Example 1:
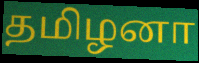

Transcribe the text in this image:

தமிழனா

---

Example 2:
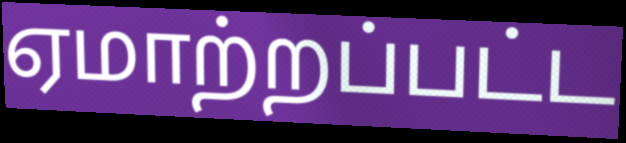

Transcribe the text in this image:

ஏமாற்றப்பட்ட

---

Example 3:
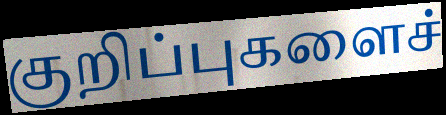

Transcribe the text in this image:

குறிப்புகளைச்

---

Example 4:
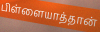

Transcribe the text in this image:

பிள்ளையாத்தான்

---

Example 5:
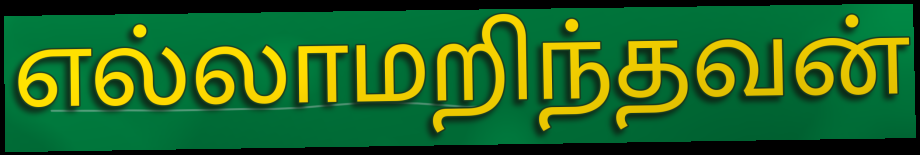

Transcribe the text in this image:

எல்லாமறிந்தவன்